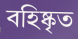
বহিষ্কৃত